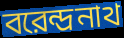
বরেন্দ্রনাথ